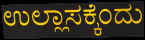
ಉಲ್ಲಾಸಕ್ಕೆಂದು